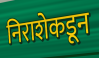
निराशेकडून